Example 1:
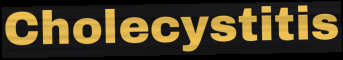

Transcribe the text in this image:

Cholecystitis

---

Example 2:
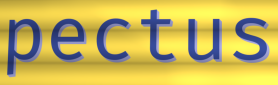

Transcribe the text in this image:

pectus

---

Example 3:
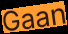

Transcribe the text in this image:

Gaan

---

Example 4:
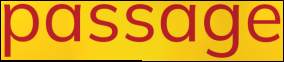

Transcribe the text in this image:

passage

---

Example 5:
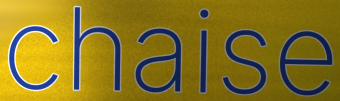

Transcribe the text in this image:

chaise